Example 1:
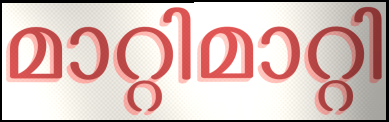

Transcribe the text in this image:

മാറ്റിമാറ്റി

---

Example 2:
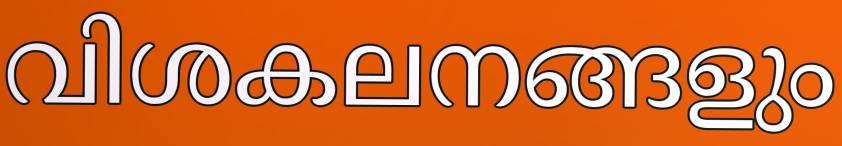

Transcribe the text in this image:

വിശകലനങ്ങളും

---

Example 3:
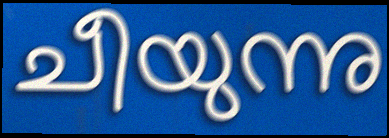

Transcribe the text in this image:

ചീയുന്നു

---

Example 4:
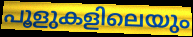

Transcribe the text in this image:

പൂളുകളിലെയും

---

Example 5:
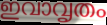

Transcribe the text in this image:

ഇവാവൃതം